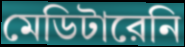
মেডিটারেনি